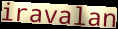
iravalan